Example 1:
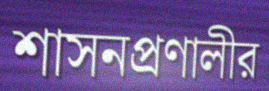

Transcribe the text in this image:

শাসনপ্রণালীর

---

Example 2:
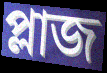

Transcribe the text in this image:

প্লাজ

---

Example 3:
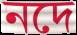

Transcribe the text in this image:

নদে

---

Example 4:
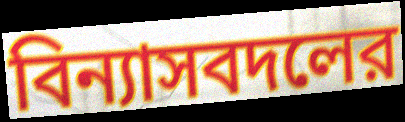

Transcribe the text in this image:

বিন্যাসবদলের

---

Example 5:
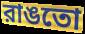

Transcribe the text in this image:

রাঙতো